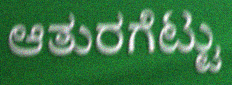
ಆತುರಗೆಟ್ಟು